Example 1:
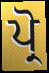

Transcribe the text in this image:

ਪ੍ਰੋ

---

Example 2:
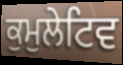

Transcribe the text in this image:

ਕੁਮੁਲੇਟਿਵ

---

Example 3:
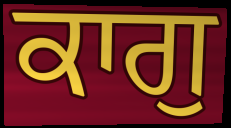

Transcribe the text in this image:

ਕਾਗੁ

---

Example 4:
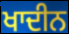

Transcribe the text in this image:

ਖਾਦੀਨ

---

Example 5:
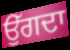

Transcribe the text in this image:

ਉੱਗਦਾ